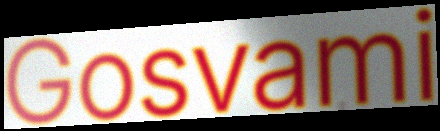
Gosvami